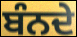
ਬੰਨਦੇ